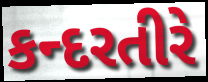
કન્દરતીરે